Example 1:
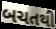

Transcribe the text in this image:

બચતથી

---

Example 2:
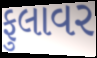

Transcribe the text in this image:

ફુલાવર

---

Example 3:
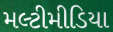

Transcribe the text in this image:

મલ્ટીમીડિયા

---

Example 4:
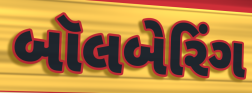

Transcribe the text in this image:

બૉલબેરિંગ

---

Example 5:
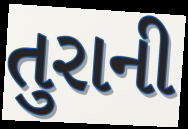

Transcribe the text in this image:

તુરાની